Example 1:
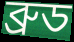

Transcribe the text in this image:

ব্রুড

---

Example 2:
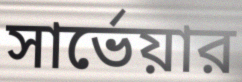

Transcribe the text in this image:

সার্ভেয়ার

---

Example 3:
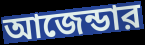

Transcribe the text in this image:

আজেন্ডার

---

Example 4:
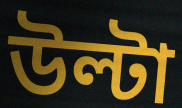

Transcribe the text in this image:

উল্টা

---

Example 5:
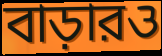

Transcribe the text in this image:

বাড়ারও